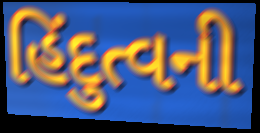
હિંદુત્વની